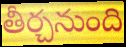
తీర్చనుంది